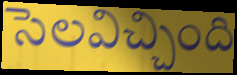
సెలవిచ్చింది